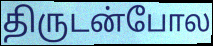
திருடன்போல